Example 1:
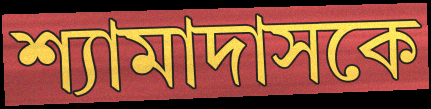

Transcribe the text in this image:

শ্যামাদাসকে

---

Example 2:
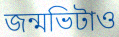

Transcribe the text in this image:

জন্মভিটাও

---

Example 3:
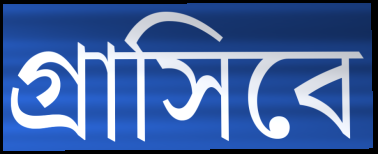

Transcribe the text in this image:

গ্রাসিবে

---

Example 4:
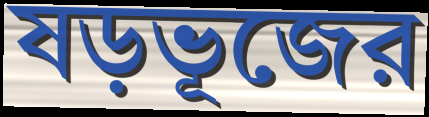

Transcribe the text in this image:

ষড়ভূজের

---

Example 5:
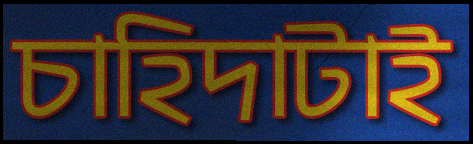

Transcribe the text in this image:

চাহিদাটাই